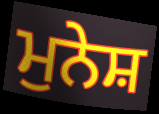
ਮੁਨੇਸ਼